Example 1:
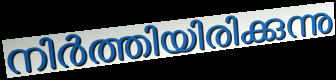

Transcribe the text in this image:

നിർത്തിയിരിക്കുന്നു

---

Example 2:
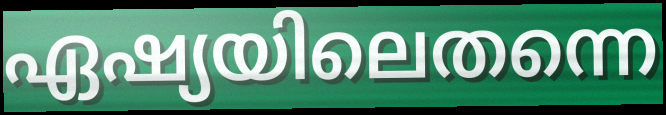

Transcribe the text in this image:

ഏഷ്യയിലെതന്നെ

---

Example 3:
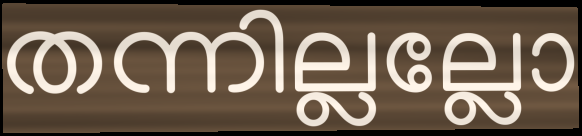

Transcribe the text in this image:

തന്നില്ലല്ലോ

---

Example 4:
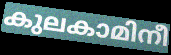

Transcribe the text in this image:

കുലകാമിനീ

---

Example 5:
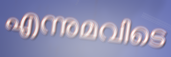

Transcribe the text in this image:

എന്നുമവിടെ